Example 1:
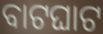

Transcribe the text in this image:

ବାଟଘାଟ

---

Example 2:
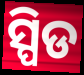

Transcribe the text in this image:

ସ୍ପିଡ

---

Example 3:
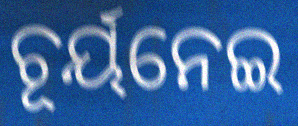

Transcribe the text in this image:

ଚୂର୍ୟନେଇ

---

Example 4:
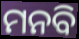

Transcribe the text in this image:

ମନବି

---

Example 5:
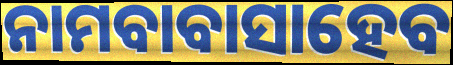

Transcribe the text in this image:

ନାମବାବାସାହେବ